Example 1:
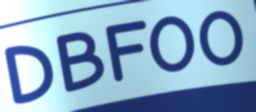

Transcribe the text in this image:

DBFOO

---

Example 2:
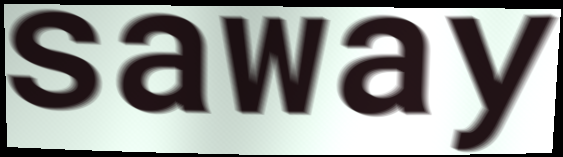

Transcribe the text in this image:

saway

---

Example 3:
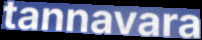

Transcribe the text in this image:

tannavara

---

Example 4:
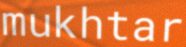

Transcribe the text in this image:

mukhtar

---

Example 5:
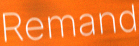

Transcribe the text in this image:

Remand